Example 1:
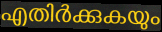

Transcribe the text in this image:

എതിർക്കുകയും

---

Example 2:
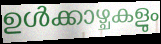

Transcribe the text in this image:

ഉൾക്കാഴ്ചകളും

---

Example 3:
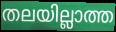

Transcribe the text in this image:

തലയില്ലാത്ത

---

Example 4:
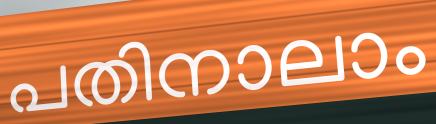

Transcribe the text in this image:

പതിനാലാം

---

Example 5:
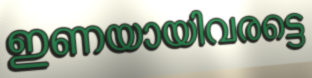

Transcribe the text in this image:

ഇണയായിവരട്ടെ